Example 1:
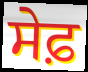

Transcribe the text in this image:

ਸੇਫ਼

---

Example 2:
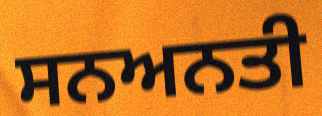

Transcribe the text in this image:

ਸਨਅਨਤੀ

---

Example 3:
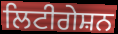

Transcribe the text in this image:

ਲਿਟੀਗੇਸ਼ਨ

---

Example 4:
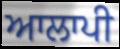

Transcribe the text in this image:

ਆਲਾਪੀ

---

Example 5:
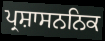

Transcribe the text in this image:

ਪ੍ਰਸ਼ਾਸਨਨਿਕ